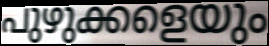
പുഴുക്കളെയും